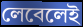
লেবেলেই